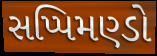
સપ્પિમણ્ડો